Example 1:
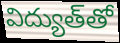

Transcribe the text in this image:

విద్యుత్‌తో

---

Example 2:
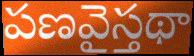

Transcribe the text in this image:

పణవైస్తథా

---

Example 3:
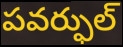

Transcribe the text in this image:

పవర్ఫుల్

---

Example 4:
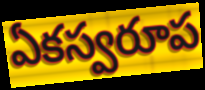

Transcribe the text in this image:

ఏకస్వరూప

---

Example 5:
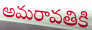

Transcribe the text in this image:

అమరావతికి